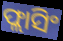
ଫ୍ଲାସିଂ